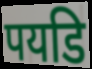
पयडि